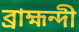
ব্রাহ্মন্দী